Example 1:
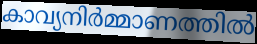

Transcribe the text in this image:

കാവ്യനിർമ്മാണത്തിൽ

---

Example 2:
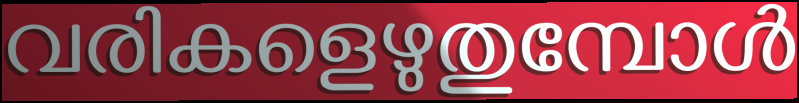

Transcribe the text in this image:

വരികളെഴുതുമ്പോൾ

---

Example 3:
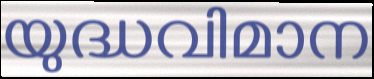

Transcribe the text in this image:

യുദ്ധവിമാന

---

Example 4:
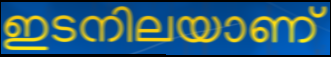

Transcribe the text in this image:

ഇടനിലയാണ്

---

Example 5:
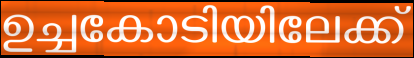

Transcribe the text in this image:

ഉച്ചകോടിയിലേക്ക്